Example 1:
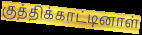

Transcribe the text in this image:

குத்திக்காட்டினாள்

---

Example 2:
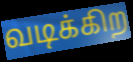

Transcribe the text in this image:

வடிக்கிற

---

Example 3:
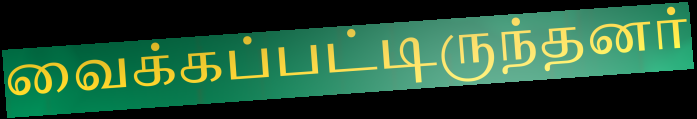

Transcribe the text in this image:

வைக்கப்பட்டிருந்தனர்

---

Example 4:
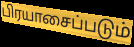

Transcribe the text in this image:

பிரயாசைப்படும்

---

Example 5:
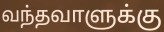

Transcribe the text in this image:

வந்தவாளுக்கு